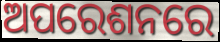
ଅପରେଶନରେ